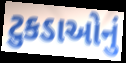
ટુકડાઓનું